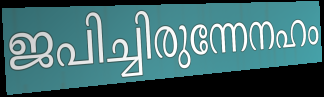
ജപിച്ചിരുന്നേനഹം